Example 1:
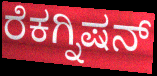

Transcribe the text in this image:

ರೆಕಗ್ನಿಷನ್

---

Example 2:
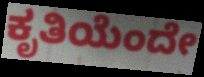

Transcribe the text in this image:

ಕೃತಿಯೆಂದೇ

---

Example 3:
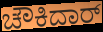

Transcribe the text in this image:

ಚೌಕಿದಾರ್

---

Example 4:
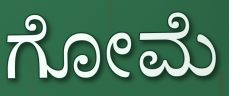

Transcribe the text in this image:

ಗೋಮೆ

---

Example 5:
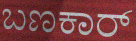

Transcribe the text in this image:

ಬಣಕಾರ್